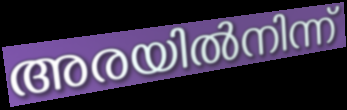
അരയിൽനിന്ന്